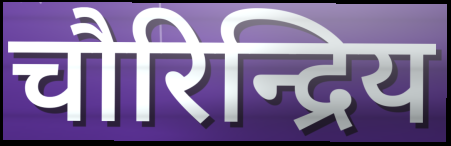
चौरिन्द्रिय